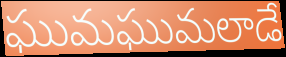
ఘుమఘుమలాడే